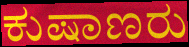
ಕುಷಾಣರು